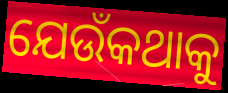
ଯେଉଁକଥାକୁ